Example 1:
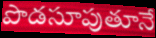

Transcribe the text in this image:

పొడసూపుతూనే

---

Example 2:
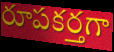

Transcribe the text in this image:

రూపకర్తగా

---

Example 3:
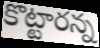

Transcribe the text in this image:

కొట్టారన్న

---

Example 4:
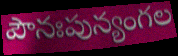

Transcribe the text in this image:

పౌనఃపున్యంగల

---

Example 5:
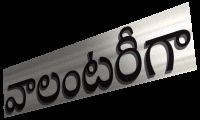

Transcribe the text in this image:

వాలంటరీగా